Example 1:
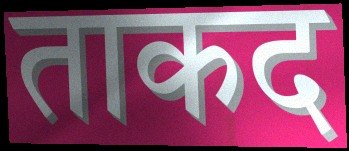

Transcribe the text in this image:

ताकद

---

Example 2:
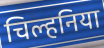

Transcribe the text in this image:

चिल्हनिया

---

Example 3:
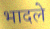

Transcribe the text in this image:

भादले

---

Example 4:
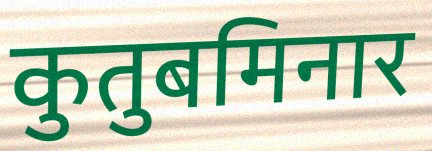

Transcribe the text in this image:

कुतुबमिनार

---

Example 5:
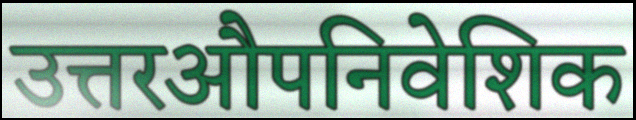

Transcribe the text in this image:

उत्तरऔपनिवेशिक